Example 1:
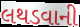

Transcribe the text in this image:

લથડવાની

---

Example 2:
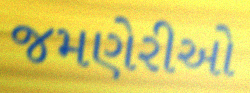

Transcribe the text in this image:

જમણેરીઓ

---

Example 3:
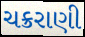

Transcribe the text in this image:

ચક્રરાણી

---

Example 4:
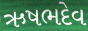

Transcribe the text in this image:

ઋષભદેવ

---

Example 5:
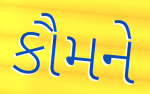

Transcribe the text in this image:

કૌમને